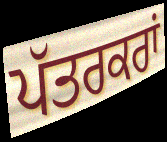
ਪੱਤਰਕਰਾਂ